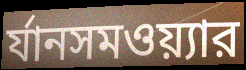
র্যানসমওয়্যার